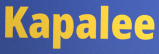
Kapalee